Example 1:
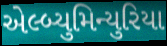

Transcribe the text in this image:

એલ્બ્યુમિન્યુરિયા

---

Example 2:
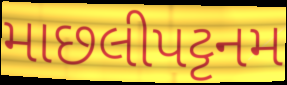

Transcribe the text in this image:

માછલીપટ્ટનમ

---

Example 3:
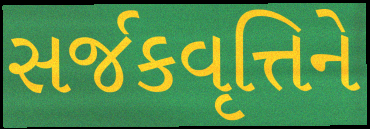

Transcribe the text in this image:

સર્જકવૃત્તિને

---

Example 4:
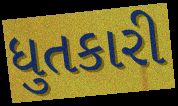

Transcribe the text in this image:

ધુતકારી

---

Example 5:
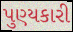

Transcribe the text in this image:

પુણ્યકારી